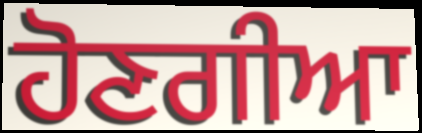
ਹੋਣਗੀਆ